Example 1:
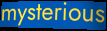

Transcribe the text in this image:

mysterious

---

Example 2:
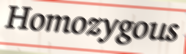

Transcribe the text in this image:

Homozygous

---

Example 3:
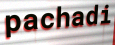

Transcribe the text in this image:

pachadi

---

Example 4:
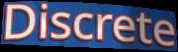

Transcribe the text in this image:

Discrete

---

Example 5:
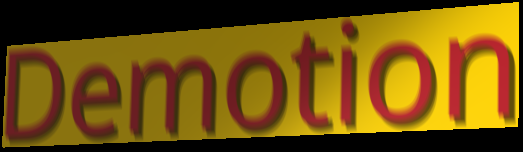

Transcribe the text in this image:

Demotion